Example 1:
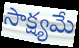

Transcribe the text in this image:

సాక్ష్యమే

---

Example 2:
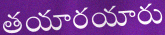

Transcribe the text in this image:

తయారయారు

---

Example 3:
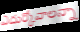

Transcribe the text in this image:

ఎదుర్కోవాలన్నా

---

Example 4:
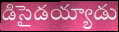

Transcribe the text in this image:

డిసైడయ్యాడు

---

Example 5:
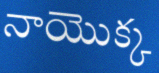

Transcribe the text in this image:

నాయొక్క